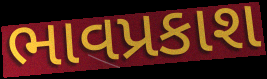
ભાવપ્રકાશ